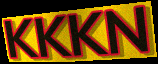
KKKN